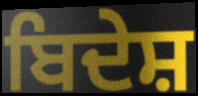
ਬਿਦੇਸ਼